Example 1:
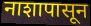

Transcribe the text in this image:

नाशापासून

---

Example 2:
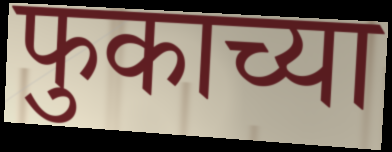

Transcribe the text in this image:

फुकाच्या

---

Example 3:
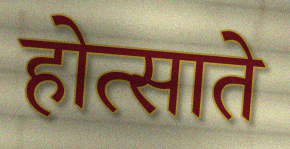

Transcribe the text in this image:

होत्साते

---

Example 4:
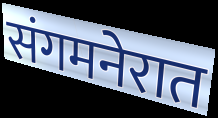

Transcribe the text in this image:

संगमनेरात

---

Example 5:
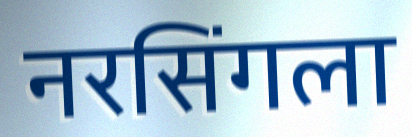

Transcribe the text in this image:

नरसिंगला